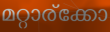
മറ്റാര്ക്കോ